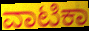
ವಾಟಿಕಾ